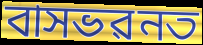
বাসভৱনত